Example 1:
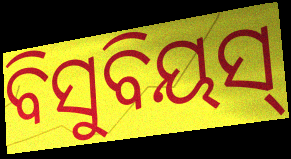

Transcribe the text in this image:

ବିସୁବିୟସ୍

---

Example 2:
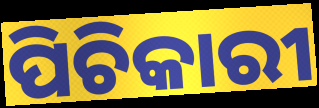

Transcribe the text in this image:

ପିଚିକାରୀ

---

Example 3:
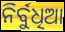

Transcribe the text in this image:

ନିର୍ବୁଧିଆ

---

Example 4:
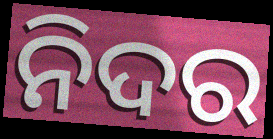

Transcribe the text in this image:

ନିଦର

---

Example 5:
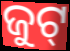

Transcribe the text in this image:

ଜୁଟ୍